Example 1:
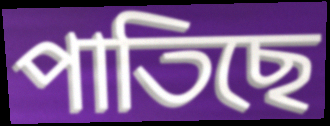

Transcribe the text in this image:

পাতিছে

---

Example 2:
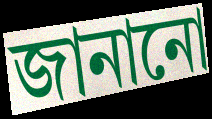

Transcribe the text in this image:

জানানো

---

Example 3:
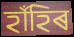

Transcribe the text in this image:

হাঁহিৰ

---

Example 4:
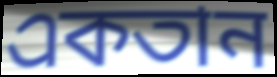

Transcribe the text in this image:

একতান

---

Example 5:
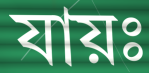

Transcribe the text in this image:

যায়ঃ